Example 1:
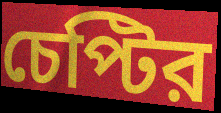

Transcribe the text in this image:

চেপ্টির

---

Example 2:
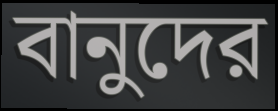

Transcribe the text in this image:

বানুদের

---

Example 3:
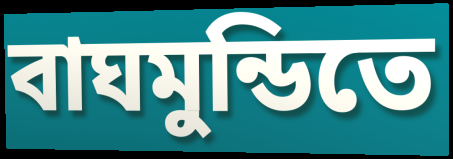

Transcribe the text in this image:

বাঘমুন্ডিতে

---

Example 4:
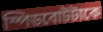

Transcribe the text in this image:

স্পিডবোটটাকে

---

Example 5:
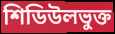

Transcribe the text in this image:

শিডিউলভুক্ত